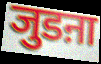
जुडऩा